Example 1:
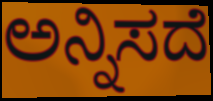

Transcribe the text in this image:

ಅನ್ನಿಸದೆ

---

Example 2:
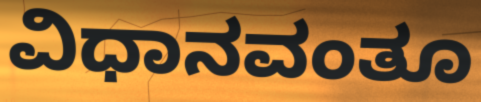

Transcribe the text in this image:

ವಿಧಾನವಂತೂ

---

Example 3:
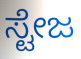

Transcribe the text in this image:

ಸ್ಟೇಜ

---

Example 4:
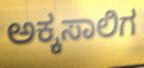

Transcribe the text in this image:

ಅಕ್ಕಸಾಲಿಗ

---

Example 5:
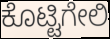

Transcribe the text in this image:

ಕೊಟ್ಟಿಗೇಲಿ